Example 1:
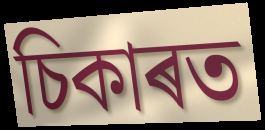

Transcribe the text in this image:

চিকাৰত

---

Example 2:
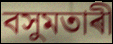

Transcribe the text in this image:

বসুমতাৰী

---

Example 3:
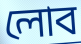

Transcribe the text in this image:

লোব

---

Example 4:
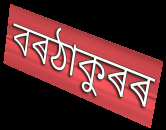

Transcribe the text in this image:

বৰঠাকুৰৰ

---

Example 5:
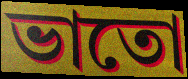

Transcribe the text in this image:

ভাতো